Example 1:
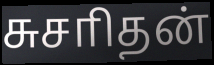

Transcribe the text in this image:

சுசரிதன்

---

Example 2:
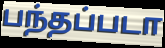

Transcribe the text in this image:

பந்தப்படா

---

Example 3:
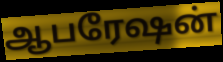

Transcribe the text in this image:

ஆபரேஷன்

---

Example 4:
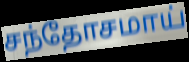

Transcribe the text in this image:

சந்தோசமாய்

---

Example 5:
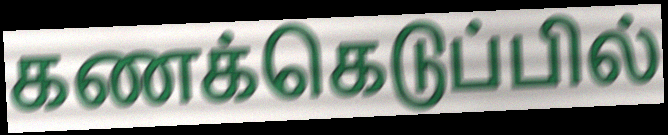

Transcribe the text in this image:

கணக்கெடுப்பில்